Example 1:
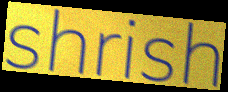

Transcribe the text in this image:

shrish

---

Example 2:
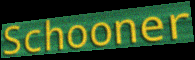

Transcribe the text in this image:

Schooner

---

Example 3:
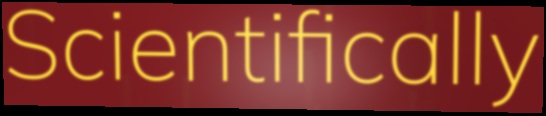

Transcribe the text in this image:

Scientifically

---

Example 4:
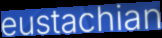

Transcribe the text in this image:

eustachian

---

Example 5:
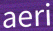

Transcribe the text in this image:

aeri